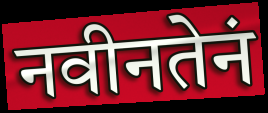
नवीनतेनं